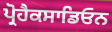
ਪ੍ਰੋਹੈਕਸਾਡਿਓਨ